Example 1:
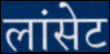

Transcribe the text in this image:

लांसेट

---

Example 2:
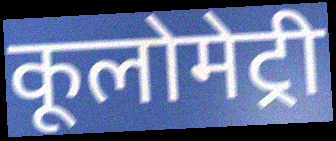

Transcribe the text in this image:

कूलोमेट्री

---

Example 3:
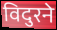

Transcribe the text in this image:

विदुरने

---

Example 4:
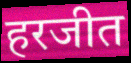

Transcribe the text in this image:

हरजीत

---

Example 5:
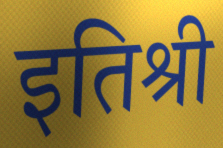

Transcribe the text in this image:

इतिश्री